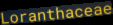
Loranthaceae